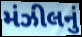
મંઝીલનું